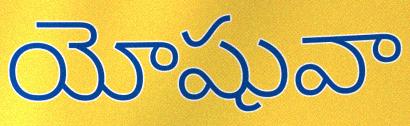
యోషువా